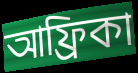
আফ্রিকা